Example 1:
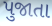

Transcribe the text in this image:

પુજાતા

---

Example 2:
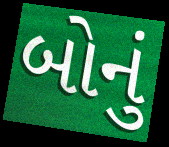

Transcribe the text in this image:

બોનું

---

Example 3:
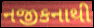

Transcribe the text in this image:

નજીકનાથી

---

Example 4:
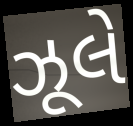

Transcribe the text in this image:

ઝૂલે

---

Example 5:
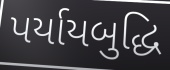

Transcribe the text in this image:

પર્યાયબુદ્ધિ